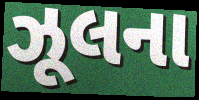
ઝૂલના